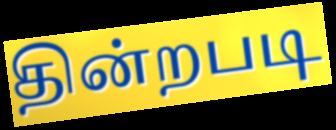
தின்றபடி